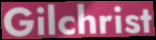
Gilchrist